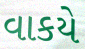
વાકયે